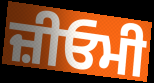
ਜ਼ੀਓਮੀ